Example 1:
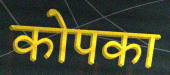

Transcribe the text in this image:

कोपका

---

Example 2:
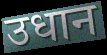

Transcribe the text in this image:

उधान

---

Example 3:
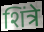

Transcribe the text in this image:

शिंत्रे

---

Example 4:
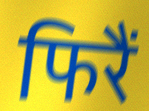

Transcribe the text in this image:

फिरैं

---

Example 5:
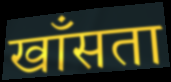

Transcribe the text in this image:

खाँसता